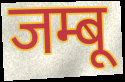
जम्बू